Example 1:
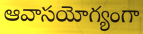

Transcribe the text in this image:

ఆవాసయోగ్యంగా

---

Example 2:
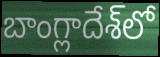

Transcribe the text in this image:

బాంగ్లాదేశ్‌లో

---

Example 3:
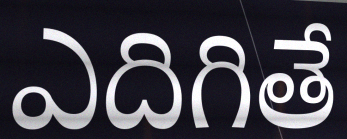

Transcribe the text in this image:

ఎదిగితే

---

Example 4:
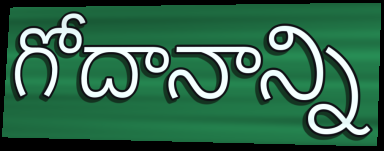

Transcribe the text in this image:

గోదానాన్ని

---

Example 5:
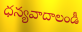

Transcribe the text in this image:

ధన్యవాదాలండీ